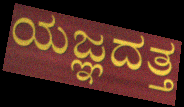
ಯಜ್ಞದತ್ತ